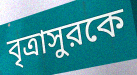
বৃত্রাসুরকে